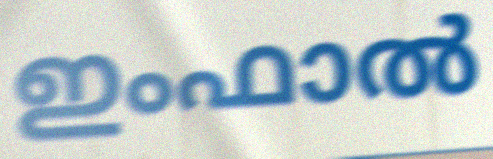
ഇംഫാൽ